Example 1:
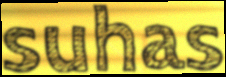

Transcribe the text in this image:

suhas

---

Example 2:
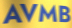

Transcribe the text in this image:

AVMB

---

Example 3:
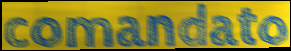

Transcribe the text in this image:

comandato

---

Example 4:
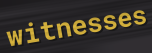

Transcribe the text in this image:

witnesses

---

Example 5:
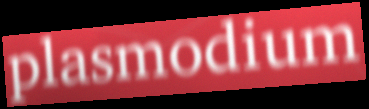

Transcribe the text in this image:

plasmodium